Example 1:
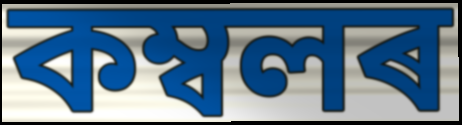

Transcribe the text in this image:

কম্বলৰ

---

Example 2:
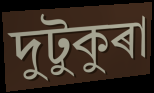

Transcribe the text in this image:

দুটুকুৰা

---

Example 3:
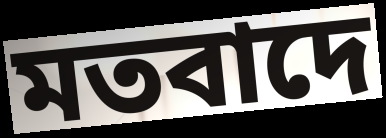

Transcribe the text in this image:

মতবাদে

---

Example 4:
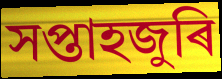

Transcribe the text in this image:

সপ্তাহজুৰি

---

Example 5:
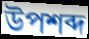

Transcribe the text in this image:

উপশব্দ